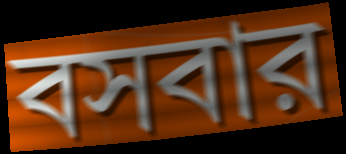
বসবার